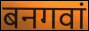
बनगवां